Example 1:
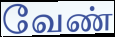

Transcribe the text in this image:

வேண்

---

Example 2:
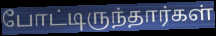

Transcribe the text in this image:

போட்டிருந்தார்கள்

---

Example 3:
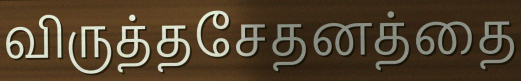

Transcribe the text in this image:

விருத்தசேதனத்தை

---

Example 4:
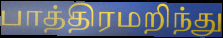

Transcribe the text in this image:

பாத்திரமறிந்து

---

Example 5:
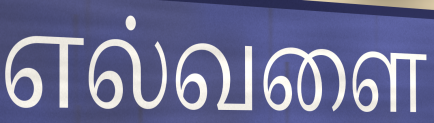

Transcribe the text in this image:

எல்வளை